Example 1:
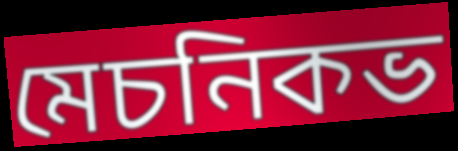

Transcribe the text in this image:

মেচনিকভ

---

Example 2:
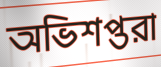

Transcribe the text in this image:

অভিশপ্তরা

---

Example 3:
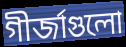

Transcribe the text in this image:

গীর্জাগুলো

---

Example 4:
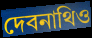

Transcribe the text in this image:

দেবনাথিও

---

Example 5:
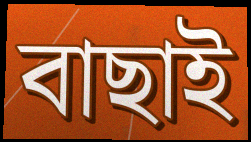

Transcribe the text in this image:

বাছাই